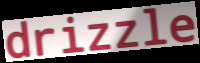
drizzle